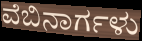
ವೆಬಿನಾರ್ಗಳು